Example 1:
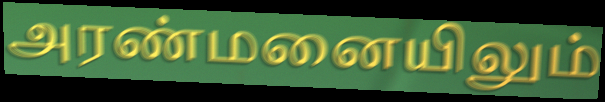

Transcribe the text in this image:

அரண்மனையிலும்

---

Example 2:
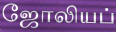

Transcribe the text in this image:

ஜோலியப்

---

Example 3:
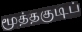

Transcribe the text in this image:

மூத்தகுடிப்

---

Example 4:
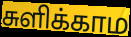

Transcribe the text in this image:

சுளிக்காம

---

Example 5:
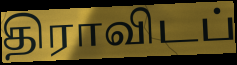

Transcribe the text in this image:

திராவிடப்